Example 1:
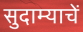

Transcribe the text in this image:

सुदाम्याचें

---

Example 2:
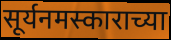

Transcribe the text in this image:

सूर्यनमस्काराच्या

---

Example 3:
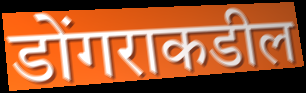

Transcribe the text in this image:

डोंगराकडील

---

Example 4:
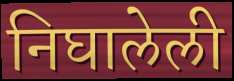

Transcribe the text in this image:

निघालेली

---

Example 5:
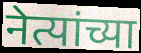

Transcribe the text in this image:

नेत्यांच्या